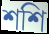
শশি